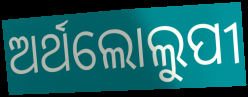
ଅର୍ଥଲୋଲୁପୀ